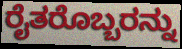
ರೈತರೊಬ್ಬರನ್ನು